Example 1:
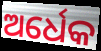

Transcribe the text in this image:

ଅର୍ଧେକ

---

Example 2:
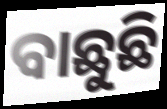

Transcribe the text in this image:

ବାଛୁଛି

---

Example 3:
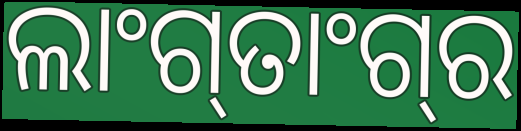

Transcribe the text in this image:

ଲାଂଗ୍‍ତାଂଗ୍‍ର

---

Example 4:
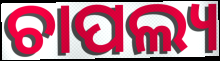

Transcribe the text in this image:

ଚାପଲ୍ୟ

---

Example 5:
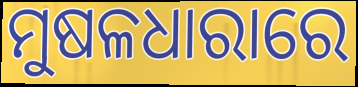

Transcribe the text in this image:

ମୁଷଳଧାରାରେ